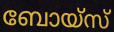
ബോയ്സ്